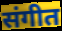
संगीत